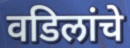
वडिलांचे